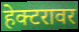
हेक्टरावर